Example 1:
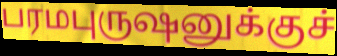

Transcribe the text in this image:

பரமபுருஷனுக்குச்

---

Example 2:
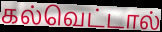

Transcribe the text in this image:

கல்வெட்டால்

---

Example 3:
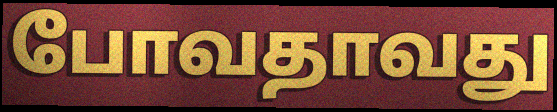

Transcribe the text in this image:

போவதாவது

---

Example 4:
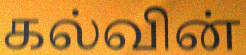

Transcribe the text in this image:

கல்வின்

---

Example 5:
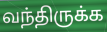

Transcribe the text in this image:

வந்திருக்க